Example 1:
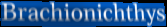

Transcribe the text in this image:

Brachionichthys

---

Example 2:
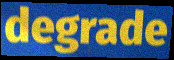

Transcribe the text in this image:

degrade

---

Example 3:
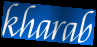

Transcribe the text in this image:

kharab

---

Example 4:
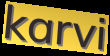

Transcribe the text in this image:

karvi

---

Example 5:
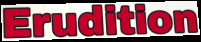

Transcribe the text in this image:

Erudition